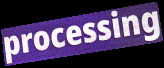
processing